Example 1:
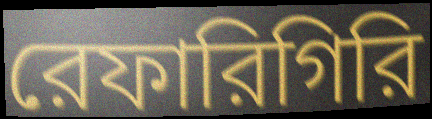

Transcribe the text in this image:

রেফারিগিরি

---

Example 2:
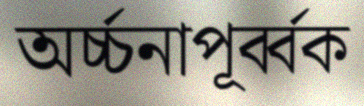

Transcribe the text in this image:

অর্চ্চনাপূর্ব্বক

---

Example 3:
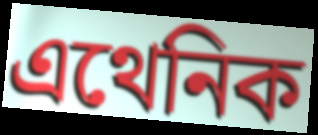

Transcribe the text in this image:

এথেনিক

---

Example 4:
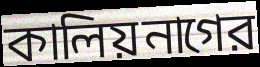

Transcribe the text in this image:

কালিয়নাগের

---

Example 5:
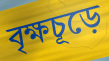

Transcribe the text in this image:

বৃক্ষচূড়ে